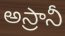
అస్రానీ